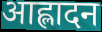
आह्लादन